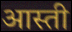
आस्ती